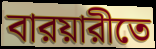
বারয়ারীতে